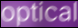
optical